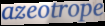
azeotrope